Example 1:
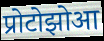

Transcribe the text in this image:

प्रोटोझोआ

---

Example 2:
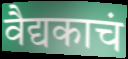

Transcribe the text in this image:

वैद्यकाचं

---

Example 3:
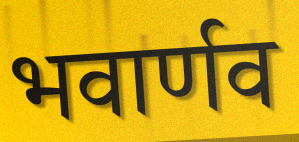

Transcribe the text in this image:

भवार्णव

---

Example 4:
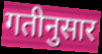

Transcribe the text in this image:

गतीनुसार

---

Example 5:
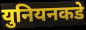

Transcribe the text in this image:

युनियनकडे